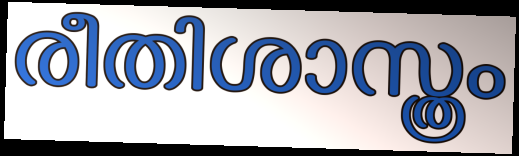
രീതിശാസ്ത്രം